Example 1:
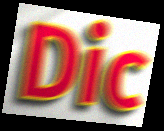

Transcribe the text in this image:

Dic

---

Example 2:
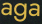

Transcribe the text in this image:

aga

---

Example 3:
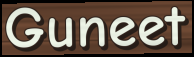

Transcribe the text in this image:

Guneet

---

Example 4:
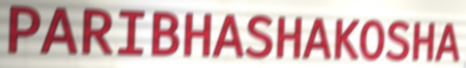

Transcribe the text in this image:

PARIBHASHAKOSHA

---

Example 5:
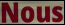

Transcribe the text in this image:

Nous